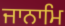
ਜਾਨਾਮਿ